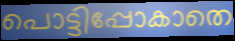
പൊട്ടിപ്പോകാതെ